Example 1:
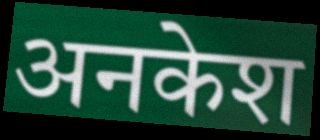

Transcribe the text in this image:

अनकेश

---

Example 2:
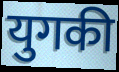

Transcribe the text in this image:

युगकी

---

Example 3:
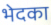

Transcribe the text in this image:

भेदका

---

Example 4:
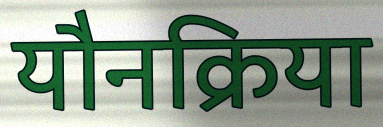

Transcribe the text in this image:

यौनक्रिया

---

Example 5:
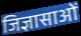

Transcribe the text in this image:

जिज्ञासाओं